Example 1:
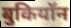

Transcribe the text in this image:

बुकियॉन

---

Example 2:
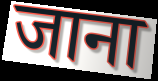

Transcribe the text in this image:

जाना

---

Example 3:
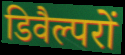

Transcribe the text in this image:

डिवैल्परों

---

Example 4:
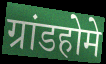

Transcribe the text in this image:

ग्रांडहोमे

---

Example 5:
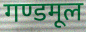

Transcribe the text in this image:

गण्डमूल